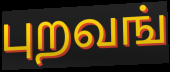
புறவங்